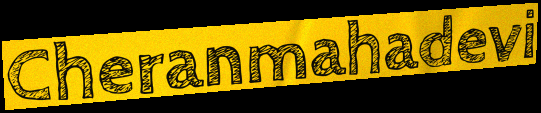
Cheranmahadevi